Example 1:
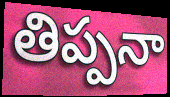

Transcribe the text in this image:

తిప్పనా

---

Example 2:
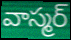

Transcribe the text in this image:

వాస్మర్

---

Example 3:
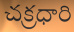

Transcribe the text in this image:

చక్రధారి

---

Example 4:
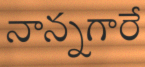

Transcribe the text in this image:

నాన్నగారే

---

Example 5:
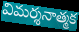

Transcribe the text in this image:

విమర్శనాత్మక